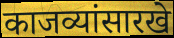
काजव्यांसारखे